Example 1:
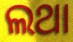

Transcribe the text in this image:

ଲଥା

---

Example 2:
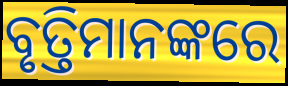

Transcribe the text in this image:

ବୃତ୍ତିମାନଙ୍କରେ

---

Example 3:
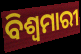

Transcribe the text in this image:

ବିଶ୍ୱମାରୀ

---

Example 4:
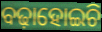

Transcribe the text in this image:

ବଢ଼ାହୋଇଚି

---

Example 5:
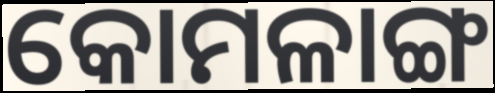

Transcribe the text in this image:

କୋମଳାଙ୍ଗ